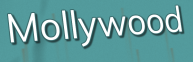
Mollywood